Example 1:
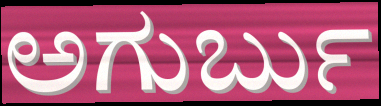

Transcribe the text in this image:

ಅಗುರ್ಬು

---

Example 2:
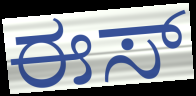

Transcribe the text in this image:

ಈಸ್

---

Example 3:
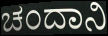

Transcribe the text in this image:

ಚಂದಾನಿ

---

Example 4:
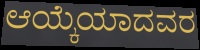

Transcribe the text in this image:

ಆಯ್ಕೆಯಾದವರ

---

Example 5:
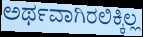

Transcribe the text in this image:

ಅರ್ಥವಾಗಿರಲಿಕ್ಕಿಲ್ಲ